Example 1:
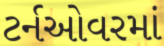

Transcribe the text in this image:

ટર્નઓવરમાં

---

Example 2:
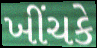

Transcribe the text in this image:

ખીંચકે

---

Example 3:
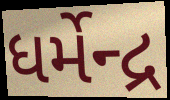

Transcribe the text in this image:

ધર્મેન્દ્ર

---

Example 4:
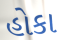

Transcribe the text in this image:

હોકા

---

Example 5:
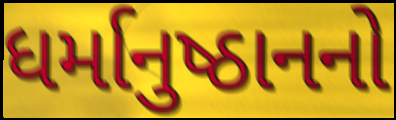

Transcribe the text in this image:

ધર્માનુષ્ઠાનનો